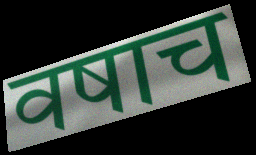
वषाच